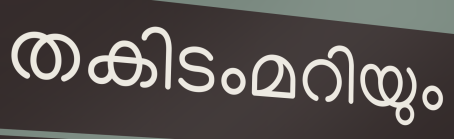
തകിടംമറിയും